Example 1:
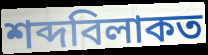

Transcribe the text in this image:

শব্দবিলাকত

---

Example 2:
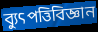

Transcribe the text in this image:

ব্যুৎপত্তিবিজ্ঞান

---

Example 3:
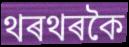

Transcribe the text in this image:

থৰথৰকৈ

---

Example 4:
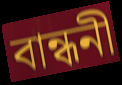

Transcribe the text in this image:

বান্ধনী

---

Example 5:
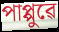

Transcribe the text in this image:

পাপ্পুৱে